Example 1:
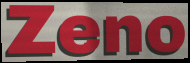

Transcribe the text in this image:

Zeno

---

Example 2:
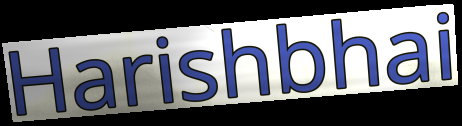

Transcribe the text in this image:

Harishbhai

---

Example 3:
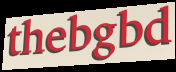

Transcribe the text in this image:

thebgbd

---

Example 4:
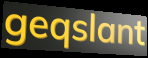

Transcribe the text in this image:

geqslant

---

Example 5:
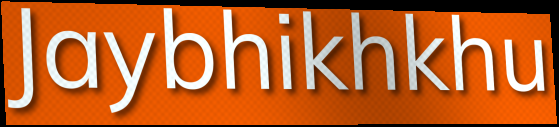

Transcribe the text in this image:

Jaybhikhkhu